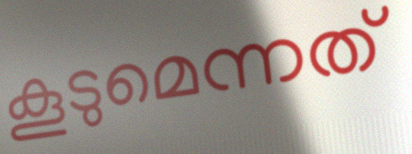
കൂടുമെന്നത്